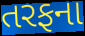
તરફના